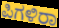
ಪಿಗಳಿರಾ